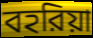
বহরিয়া